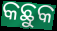
କଛୁକ